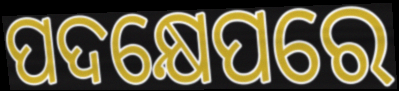
ପଦକ୍ଷେପରେ